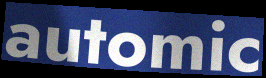
automic